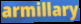
armillary